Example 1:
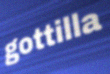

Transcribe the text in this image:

gottilla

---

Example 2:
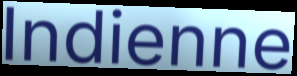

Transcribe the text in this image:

Indienne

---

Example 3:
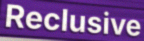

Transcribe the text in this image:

Reclusive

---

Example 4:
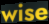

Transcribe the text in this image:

wise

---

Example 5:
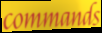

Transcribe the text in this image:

commands